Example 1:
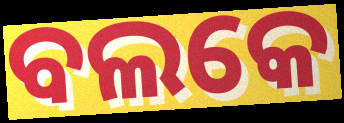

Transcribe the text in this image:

ବଲକେ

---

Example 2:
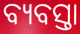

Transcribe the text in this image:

ବ୍ୟବସ୍ତା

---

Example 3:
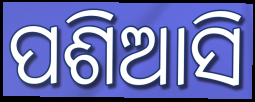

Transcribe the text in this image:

ପଶିଆସି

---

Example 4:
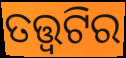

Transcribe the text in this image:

ତତ୍ତ୍ଵଟିର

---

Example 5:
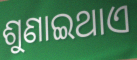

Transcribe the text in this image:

ଶୁଣାଇଥାଏ